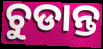
ଚୁଡାନ୍ତ